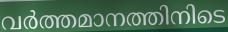
വർത്തമാനത്തിനിടെ